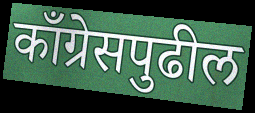
काँग्रेसपुढील